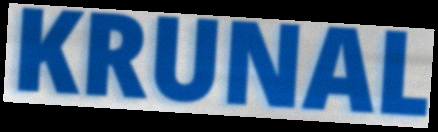
KRUNAL